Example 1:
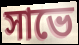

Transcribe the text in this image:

সাভে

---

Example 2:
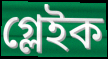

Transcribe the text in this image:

গ্লেইক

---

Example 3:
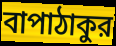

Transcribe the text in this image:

বাপাঠাকুর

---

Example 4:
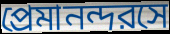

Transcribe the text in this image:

প্রেমানন্দরসে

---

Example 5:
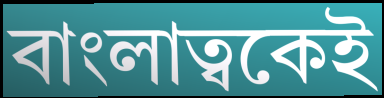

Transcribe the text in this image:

বাংলাত্বকেই